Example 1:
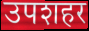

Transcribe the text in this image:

उपशहर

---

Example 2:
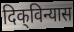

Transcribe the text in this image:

दिक्‌विन्यास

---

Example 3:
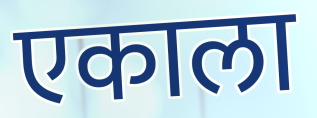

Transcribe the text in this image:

एकाला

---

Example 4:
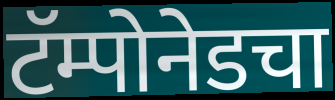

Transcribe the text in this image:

टॅम्पोनेडचा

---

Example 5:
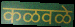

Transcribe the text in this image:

कळवळे